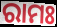
ରାମଃ